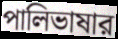
পালিভাষার